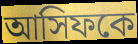
আসিফকে